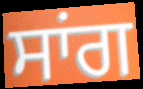
ਸਾਂਗ